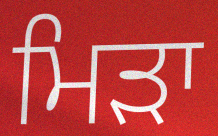
ਮਿੜਾ